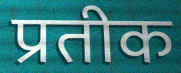
प्रतीक